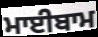
ਮਾਈਬਾਮ